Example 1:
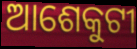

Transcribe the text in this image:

ଆଶେକୁଟୀ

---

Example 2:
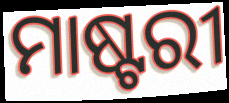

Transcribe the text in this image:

ମାଷ୍ଟରୀ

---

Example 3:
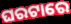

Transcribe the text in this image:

ଘରଟାରେ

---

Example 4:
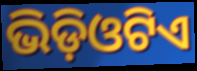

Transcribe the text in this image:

ଭିଡ଼ିଓଟିଏ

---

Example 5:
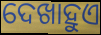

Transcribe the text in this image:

ଦେଖାହୁଏ